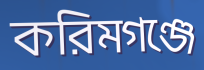
করিমগঞ্জে